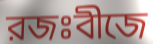
রজঃবীজে